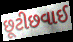
છૂટીછવાઈ